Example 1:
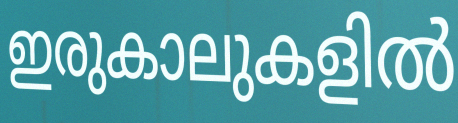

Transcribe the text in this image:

ഇരുകാലുകളിൽ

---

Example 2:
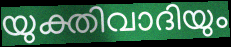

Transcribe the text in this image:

യുക്തിവാദിയും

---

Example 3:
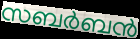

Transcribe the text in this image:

സബർബൻ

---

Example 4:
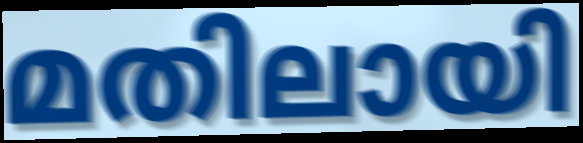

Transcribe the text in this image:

മതിലായി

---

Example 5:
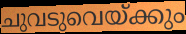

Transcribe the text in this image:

ചുവടുവെയ്ക്കും